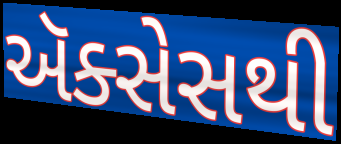
ઍક્સેસથી